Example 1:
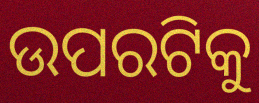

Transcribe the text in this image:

ଉପରଟିକୁ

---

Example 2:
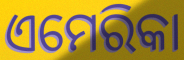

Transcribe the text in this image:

ଏମେରିକା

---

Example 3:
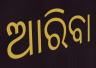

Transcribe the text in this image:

ଆରିବା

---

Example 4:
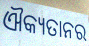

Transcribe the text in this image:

ଐକ୍ୟତାନର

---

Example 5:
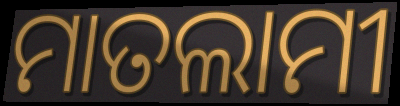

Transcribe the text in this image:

ମାତଲାମୀ